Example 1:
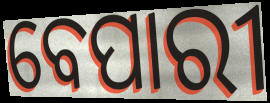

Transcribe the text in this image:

ବେପାରୀ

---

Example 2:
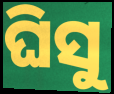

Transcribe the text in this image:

ଘିସୁ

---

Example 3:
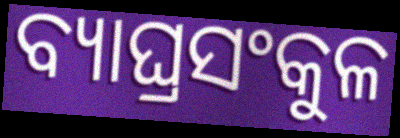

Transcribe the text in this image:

ବ୍ୟାଘ୍ରସଂକୁଳ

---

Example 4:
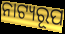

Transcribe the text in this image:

ନାଟ୍ୟରୂପ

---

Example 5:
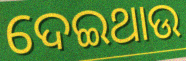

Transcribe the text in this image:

ଦେଇଥାଉ